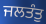
ਜਲਤੰਤੁ